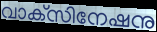
വാക്‌സിനേഷനു